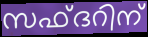
സഫ്ദറിന്